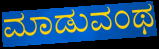
ಮಾಡುವಂಥ